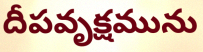
దీపవృక్షమును